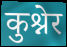
कुश्नेर